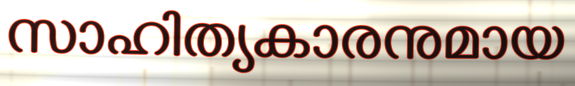
സാഹിത്യകാരനുമായ